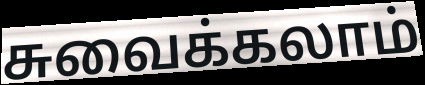
சுவைக்கலாம்